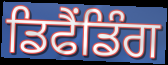
ਡਿਫੈਂਡਿੰਗ